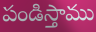
పండిస్తాము